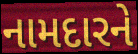
નામદારને